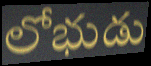
లోభుడు